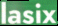
lasix